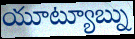
యూట్యూబ్ను